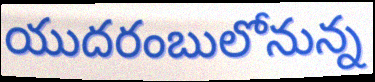
యుదరంబులోనున్న